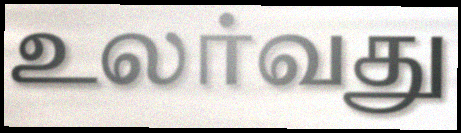
உலர்வது